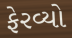
ફેરવ્યો